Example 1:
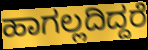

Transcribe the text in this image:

ಹಾಗಲ್ಲದಿದ್ದರೆ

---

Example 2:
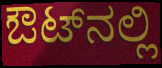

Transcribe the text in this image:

ಔಟ್‌ನಲ್ಲಿ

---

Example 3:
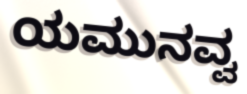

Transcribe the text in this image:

ಯಮುನವ್ವ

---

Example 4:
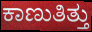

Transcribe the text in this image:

ಕಾಣುತಿತ್ತು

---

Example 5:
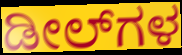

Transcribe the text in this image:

ಡೀಲ್‌ಗಳ